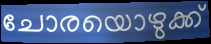
ചോരയൊഴുക്ക്